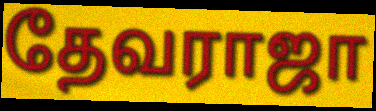
தேவராஜா